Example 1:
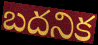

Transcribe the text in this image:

బదనిక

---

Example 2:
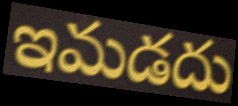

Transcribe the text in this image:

ఇమడదు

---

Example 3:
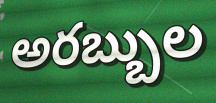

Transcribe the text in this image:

అరబ్బుల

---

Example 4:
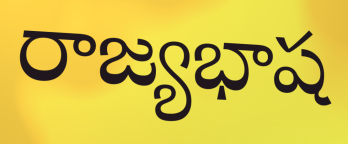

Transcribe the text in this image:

రాజ్యభాష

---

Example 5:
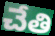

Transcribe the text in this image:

చేతి